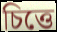
চিত্তে